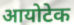
आयोटेक